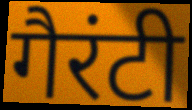
गैरंटी